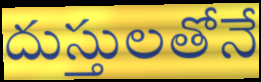
దుస్తులతోనే